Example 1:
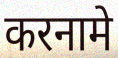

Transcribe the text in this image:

करनामे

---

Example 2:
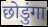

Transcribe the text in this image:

छोडुंगा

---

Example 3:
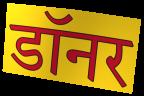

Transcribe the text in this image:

डॉनर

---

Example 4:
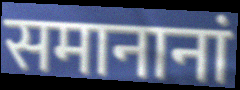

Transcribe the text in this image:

समानानां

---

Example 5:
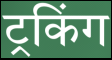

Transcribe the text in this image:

ट्रकिंग